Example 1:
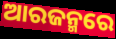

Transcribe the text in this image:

ଆରଜନ୍ମରେ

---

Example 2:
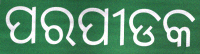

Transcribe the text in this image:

ପରପୀଡକ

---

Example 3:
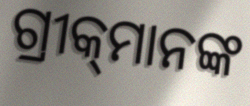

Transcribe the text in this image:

ଗ୍ରୀକ୍‌ମାନଙ୍କ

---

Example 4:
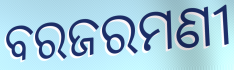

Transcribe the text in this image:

ବରଜରମଣୀ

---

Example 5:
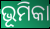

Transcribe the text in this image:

ଭୂମିକା